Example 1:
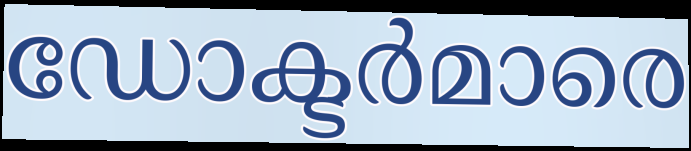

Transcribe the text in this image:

ഡോക്ടർമാരെ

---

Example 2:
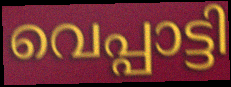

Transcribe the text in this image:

വെപ്പാട്ടി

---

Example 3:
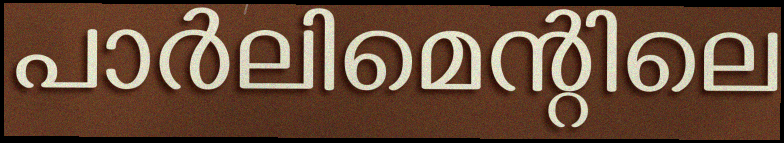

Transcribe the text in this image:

പാർലിമെന്റിലെ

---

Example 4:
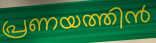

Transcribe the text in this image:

പ്രണയത്തിൻ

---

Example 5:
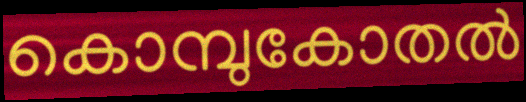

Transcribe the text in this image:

കൊമ്പുകോതൽ